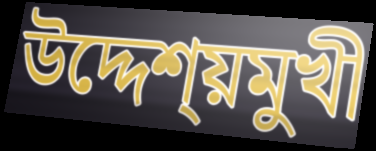
উদ্দেশ্য়মুখী